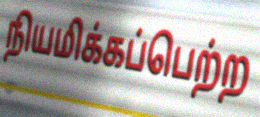
நியமிக்கப்பெற்ற